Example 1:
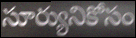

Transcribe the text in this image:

సూర్యునికోసం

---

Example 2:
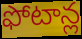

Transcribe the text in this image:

ఫోటాన్ల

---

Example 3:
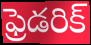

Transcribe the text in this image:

ఫ్రెడరిక్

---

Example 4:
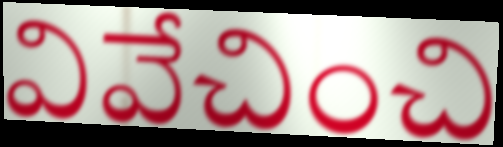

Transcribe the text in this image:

వివేచించి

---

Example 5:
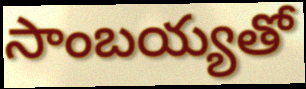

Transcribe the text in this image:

సాంబయ్యతో